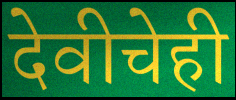
देवीचेही